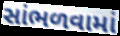
સાંભળવામાં